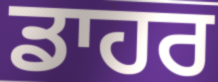
ਡਾਹਰ